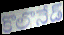
కొలొనేడ్